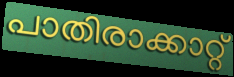
പാതിരാക്കാറ്റ്